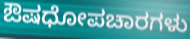
ಔಷಧೋಪಚಾರಗಳು